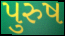
પુરુષ